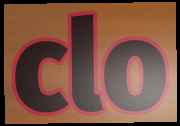
clo